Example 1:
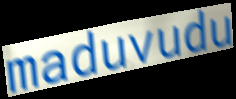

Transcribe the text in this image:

maduvudu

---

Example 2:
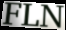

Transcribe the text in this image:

FLN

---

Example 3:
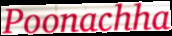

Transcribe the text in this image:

Poonachha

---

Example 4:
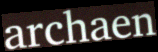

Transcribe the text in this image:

archaen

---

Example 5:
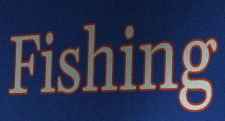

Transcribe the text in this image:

Fishing